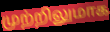
முற்றிலுமாக